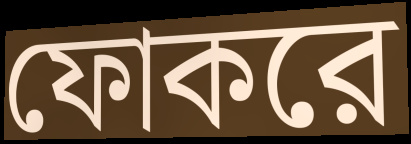
ফোকরে